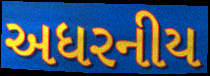
અધરનીય